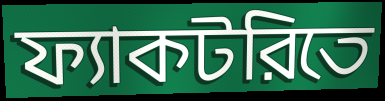
ফ্যাকটরিতে